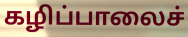
கழிப்பாலைச்